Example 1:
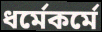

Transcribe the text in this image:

ধর্মেকর্মে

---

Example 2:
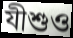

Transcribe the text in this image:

যীশুও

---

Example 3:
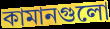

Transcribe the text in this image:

কামানগুলো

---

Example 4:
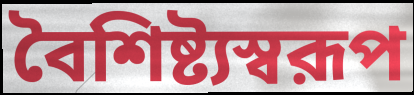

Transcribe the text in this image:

বৈশিষ্ট্যস্বরূপ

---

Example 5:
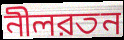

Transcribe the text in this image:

নীলরতন